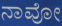
ನಾವೋ